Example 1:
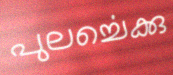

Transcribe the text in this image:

പുലൎച്ചെക്കു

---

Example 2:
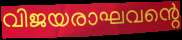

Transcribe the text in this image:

വിജയരാഘവന്റെ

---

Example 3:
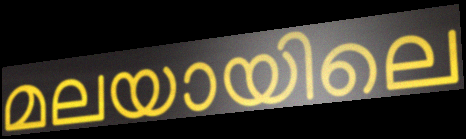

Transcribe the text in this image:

മലയായിലെ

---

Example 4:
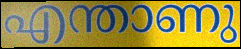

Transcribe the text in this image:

എന്താണു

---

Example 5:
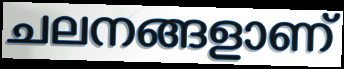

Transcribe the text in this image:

ചലനങ്ങളാണ്